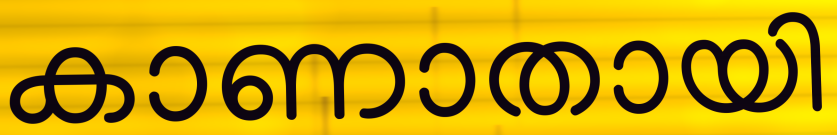
കാണാതായി